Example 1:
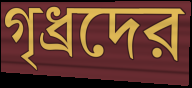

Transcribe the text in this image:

গৃধ্রদের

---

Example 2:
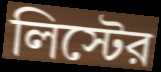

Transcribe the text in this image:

লিস্টের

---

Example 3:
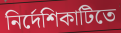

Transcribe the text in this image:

নির্দেশিকাটিতে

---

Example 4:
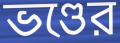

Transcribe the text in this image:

ভণ্ডের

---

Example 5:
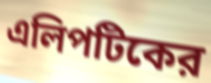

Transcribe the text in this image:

এলিপটিকের